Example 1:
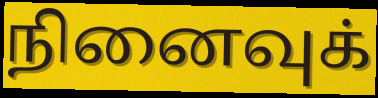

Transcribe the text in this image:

நினைவுக்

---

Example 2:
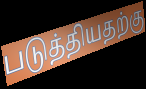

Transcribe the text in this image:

படுத்தியதற்கு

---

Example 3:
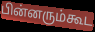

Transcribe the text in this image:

பின்னரும்கூட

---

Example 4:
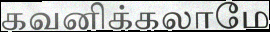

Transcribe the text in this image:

கவனிக்கலாமே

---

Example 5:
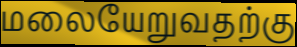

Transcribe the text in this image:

மலையேறுவதற்கு